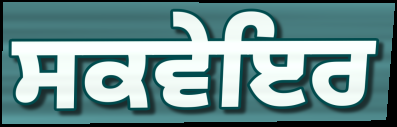
ਸਕਵੇਇਰ